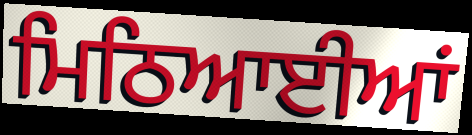
ਮਿਠਿਆਈਆਂ